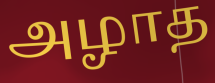
அழாத